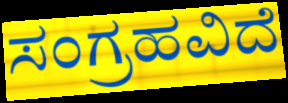
ಸಂಗ್ರಹವಿದೆ